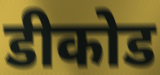
डीकोड